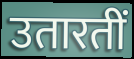
उतारतीं